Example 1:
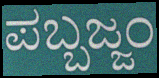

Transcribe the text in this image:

ಪಬ್ಬಜ್ಜಂ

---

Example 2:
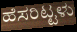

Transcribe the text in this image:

ಹೆಸರಿಟ್ಟಳು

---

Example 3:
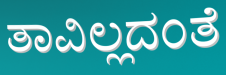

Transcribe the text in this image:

ತಾವಿಲ್ಲದಂತೆ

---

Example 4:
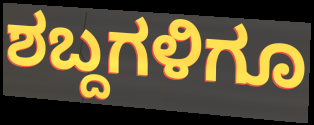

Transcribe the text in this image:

ಶಬ್ದಗಳಿಗೂ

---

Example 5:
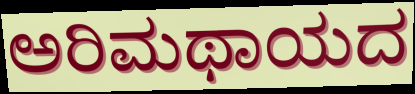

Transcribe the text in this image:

ಅರಿಮಥಾಯದ